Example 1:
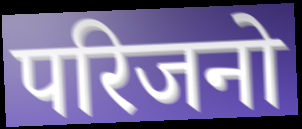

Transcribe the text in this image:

परिजनो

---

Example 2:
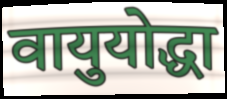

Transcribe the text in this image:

वायुयोद्धा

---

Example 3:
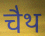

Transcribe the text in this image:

चैथ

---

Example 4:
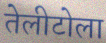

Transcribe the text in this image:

तेलीटोला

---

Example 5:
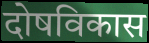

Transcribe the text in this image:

दोषविकास